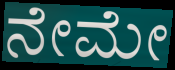
ನೇಮೇ